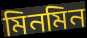
মিনমিন